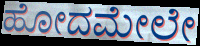
ಹೋದಮೇಲೇ